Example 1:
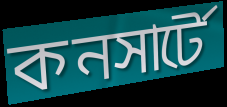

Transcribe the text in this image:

কনসার্টে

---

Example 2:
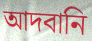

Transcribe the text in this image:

আদবানি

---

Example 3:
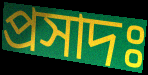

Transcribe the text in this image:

প্রসাদঃ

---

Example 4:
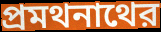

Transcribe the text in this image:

প্রমথনাথের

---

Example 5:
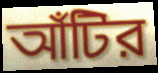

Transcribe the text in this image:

আঁটির